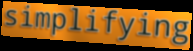
simplifying